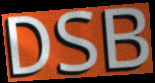
DSB